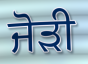
ਜੋੜੀ